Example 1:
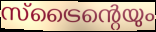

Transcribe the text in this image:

സ്ട്രൈന്റെയും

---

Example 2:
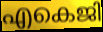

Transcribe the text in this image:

എകെജി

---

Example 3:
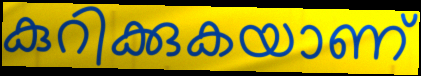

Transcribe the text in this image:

കുറിക്കുകയാണ്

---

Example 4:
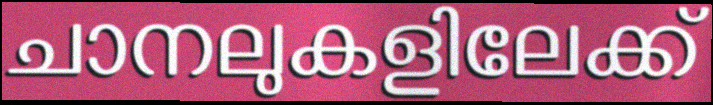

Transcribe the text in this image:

ചാനലുകളിലേക്ക്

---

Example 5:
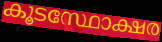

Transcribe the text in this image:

കൂടസ്ഥോക്ഷര